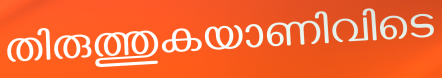
തിരുത്തുകയാണിവിടെ